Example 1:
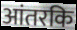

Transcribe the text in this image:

आंतरकि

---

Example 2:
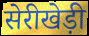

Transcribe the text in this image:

सेरीखेड़ी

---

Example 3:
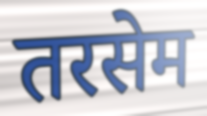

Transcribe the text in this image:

तरसेम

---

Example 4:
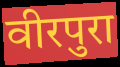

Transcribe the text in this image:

वीरपुरा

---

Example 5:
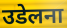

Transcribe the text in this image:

उडेलना